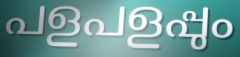
പളപളപ്പും